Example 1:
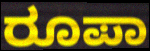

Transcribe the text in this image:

ರೂಪಾ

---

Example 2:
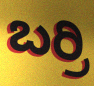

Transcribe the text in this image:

ಬರ್ರಿ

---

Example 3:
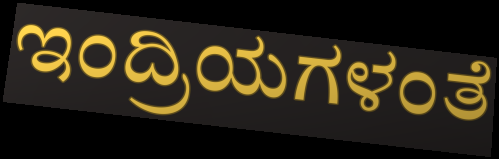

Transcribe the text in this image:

ಇಂದ್ರಿಯಗಳಂತೆ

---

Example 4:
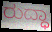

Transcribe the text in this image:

ರುದ್ಧಾ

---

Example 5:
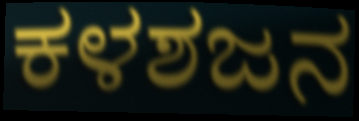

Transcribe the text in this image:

ಕಳಶಜನ